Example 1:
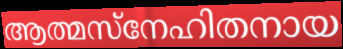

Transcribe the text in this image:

ആത്മസ്നേഹിതനായ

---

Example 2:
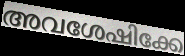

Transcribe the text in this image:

അവശേഷിക്കേ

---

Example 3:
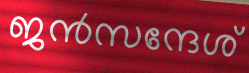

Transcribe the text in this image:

ജൻസന്ദേശ്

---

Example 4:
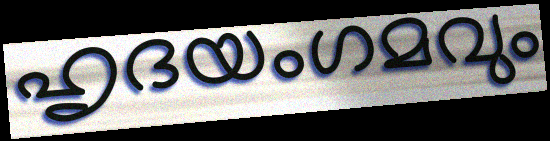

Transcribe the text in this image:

ഹൃദയംഗമവും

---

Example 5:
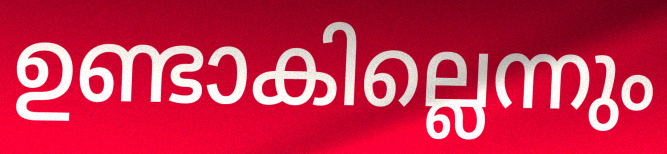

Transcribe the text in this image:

ഉണ്ടാകില്ലെന്നും